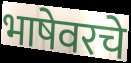
भाषेवरचे